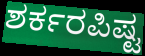
ಶರ್ಕರಪಿಷ್ಟ